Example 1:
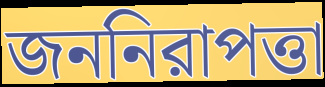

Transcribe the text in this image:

জননিরাপত্তা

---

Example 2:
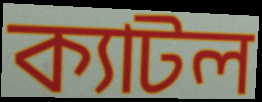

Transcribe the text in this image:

ক্যাটল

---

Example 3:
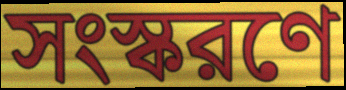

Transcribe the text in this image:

সংস্করণে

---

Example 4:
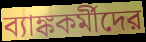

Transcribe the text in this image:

ব্যাঙ্ককর্মীদের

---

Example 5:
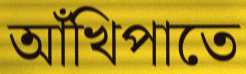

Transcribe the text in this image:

আঁখিপাতে